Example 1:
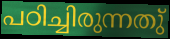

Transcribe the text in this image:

പഠിച്ചിരുന്നതു്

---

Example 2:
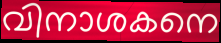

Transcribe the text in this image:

വിനാശകനെ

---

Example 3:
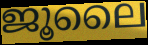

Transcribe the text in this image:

ജൂലൈ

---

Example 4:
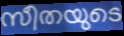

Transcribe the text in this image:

സീതയുടെ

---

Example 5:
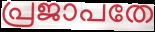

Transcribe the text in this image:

പ്രജാപതേ